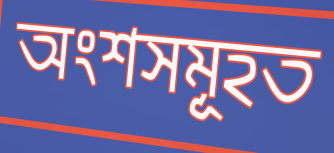
অংশসমূহত